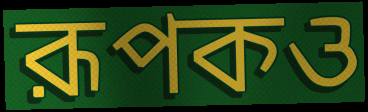
রূপকও